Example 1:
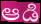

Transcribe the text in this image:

ఆడి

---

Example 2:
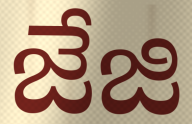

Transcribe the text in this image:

జేజి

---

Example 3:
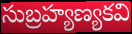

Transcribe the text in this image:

సుబ్రహ్యణ్యకవి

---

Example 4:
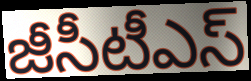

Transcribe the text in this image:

జీసీటీఎస్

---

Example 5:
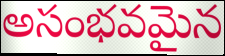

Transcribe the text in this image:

అసంభవమైన